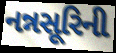
નન્નસૂરિની